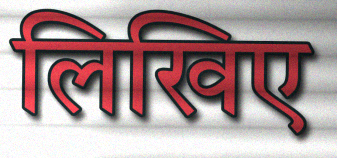
लिखिए